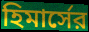
হিমার্সের